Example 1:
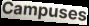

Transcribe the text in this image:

Campuses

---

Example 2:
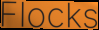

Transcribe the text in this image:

Flocks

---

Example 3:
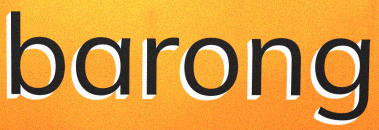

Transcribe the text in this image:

barong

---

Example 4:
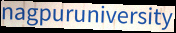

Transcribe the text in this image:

nagpuruniversity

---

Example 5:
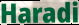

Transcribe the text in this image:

Haradi